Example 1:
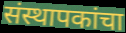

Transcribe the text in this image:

संस्थापकांचा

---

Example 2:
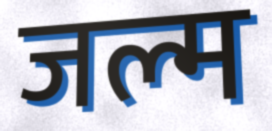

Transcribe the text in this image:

जल्म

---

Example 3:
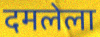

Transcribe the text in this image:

दमलेला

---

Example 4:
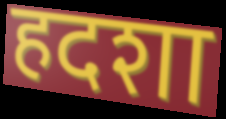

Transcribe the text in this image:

हदशा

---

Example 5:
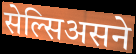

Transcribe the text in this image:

सेल्सिअसने